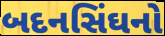
બદનસિંઘનો